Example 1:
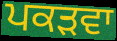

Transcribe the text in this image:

ਪਕੜਵਾ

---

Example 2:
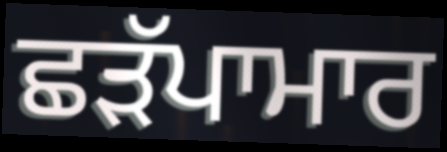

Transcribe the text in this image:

ਛੜੱਪਾਮਾਰ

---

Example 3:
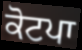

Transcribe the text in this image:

ਕੋਟਪਾ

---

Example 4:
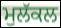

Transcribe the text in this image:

ਮੁਲੱਕਲ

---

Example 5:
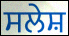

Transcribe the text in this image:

ਸਲੇਸ਼